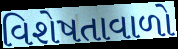
વિશેષતાવાળો